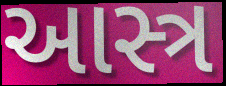
આસ્ત્ર